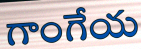
గాంగేయ